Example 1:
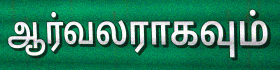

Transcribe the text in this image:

ஆர்வலராகவும்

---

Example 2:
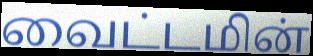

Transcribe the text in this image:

வைட்டமின்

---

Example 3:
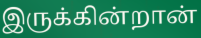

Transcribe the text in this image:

இருக்கின்றான்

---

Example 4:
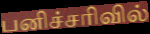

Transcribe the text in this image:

பனிச்சரிவில்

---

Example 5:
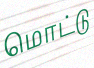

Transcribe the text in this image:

மொட்டு